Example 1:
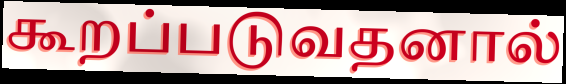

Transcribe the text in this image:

கூறப்படுவதனால்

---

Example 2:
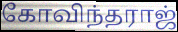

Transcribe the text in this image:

கோவிந்தராஜ்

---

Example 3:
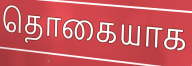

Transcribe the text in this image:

தொகையாக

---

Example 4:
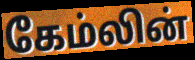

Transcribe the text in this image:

கேம்லின்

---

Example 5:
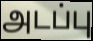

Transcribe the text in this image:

அடப்பு